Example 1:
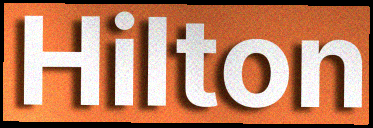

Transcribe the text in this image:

Hilton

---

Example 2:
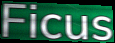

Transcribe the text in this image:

Ficus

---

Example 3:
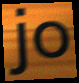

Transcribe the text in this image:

jo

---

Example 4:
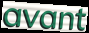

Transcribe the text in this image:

avant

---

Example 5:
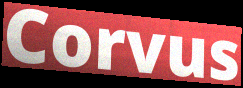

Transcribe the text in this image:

Corvus